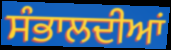
ਸੰਭਾਲਦੀਆਂ